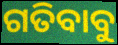
ଗତିବାବୁ